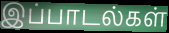
இப்பாடல்கள்